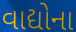
વાદ્યોના